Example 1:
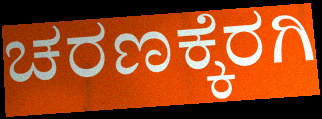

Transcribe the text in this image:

ಚರಣಕ್ಕೆರಗಿ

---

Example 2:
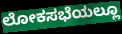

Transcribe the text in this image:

ಲೋಕಸಭೆಯಲ್ಲೂ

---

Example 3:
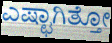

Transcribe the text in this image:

ಎಷ್ಟಾಗಿತ್ತೋ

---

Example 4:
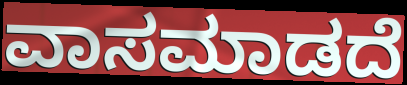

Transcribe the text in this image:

ವಾಸಮಾಡದೆ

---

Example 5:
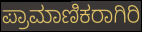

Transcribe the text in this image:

ಪ್ರಾಮಾಣಿಕರಾಗಿರಿ